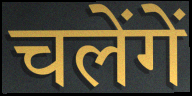
चलेंगें